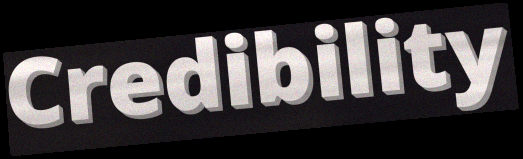
Credibility